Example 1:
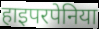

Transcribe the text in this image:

हाइपरपेनिया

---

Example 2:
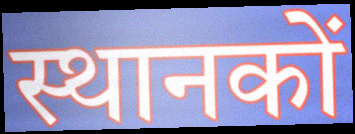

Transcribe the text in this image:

स्थानकों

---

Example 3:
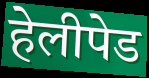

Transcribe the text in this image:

हेलीपेड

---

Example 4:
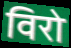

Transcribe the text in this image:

विरो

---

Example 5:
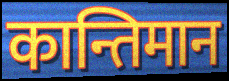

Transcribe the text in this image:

कान्तिमान